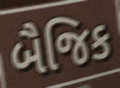
બૈજિક